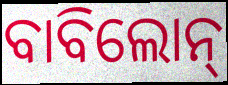
ବାବିଲୋନ୍